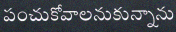
పంచుకోవాలనుకున్నాను